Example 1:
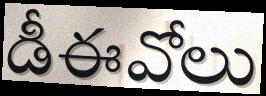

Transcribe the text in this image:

డీఈవోలు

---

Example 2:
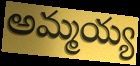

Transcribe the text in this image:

అమ్మయ్య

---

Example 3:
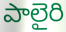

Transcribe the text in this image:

పాలైరి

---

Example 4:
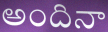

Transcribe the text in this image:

అందినా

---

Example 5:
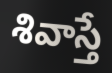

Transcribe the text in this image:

శివాస్తే